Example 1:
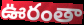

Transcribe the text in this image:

ఊరంతా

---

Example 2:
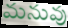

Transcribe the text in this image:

మనువు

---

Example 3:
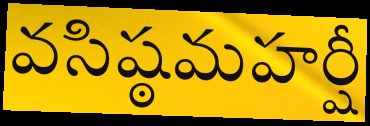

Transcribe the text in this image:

వసిష్ఠమహర్షీ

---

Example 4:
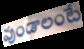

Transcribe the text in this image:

వుండాలంటే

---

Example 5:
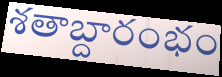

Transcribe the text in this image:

శతాబ్దారంభం